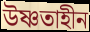
উষ্ণতাহীন